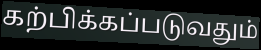
கற்பிக்கப்படுவதும்